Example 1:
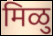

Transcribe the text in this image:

मिळु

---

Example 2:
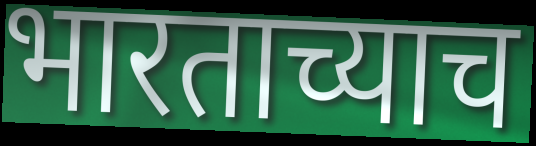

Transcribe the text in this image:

भारताच्याच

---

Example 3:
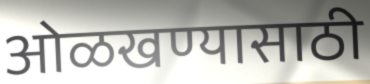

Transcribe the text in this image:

ओळखण्यासाठी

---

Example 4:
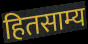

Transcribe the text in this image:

हितसाम्य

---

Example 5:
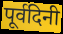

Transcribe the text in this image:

पूर्वदिनी